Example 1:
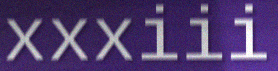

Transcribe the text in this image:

xxxiii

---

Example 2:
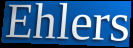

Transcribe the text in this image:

Ehlers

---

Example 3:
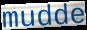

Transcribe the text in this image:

mudde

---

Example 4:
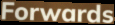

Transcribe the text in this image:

Forwards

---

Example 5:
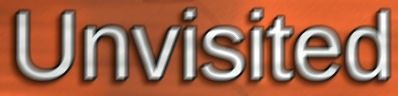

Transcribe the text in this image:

Unvisited